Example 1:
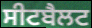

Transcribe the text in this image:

ਸੀਟਬੈਲਟ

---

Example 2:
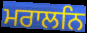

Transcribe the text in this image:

ਮਰਾਲਨਿ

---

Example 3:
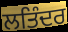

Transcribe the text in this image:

ਲਤਿੰਦਰ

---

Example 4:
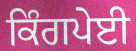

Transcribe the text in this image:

ਕਿੰਗਪੇਈ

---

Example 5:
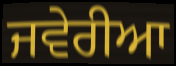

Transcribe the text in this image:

ਜਵੇਰੀਆ